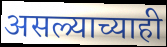
असल्याच्याही